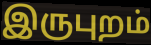
இருபுறம்